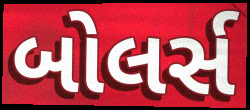
બોલર્સ